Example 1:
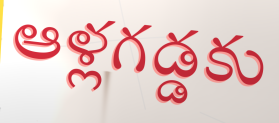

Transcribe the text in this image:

ఆళ్లగడ్డకు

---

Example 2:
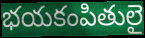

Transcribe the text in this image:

భయకంపితులై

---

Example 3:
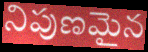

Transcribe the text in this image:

నిపుణమైన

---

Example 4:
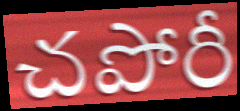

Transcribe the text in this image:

చపోరీ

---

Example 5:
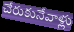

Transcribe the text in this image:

చేరుకునేవాళ్లు